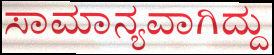
ಸಾಮಾನ್ಯವಾಗಿದ್ದು